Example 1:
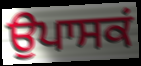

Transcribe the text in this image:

ਉਪਾਸਕਂ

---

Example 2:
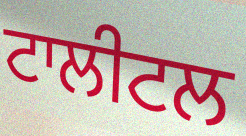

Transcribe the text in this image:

ਟਾਲੀਟਲ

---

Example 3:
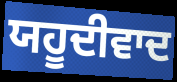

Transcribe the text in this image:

ਯਹੂਦੀਵਾਦ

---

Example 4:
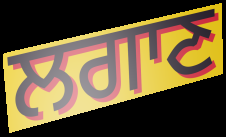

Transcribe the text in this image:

ਲਗਾਣ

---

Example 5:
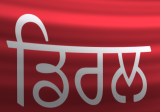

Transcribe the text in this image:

ਡਿਰਲ